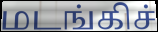
மடங்கிச்